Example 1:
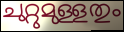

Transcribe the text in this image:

ചുറ്റുമുള്ളതും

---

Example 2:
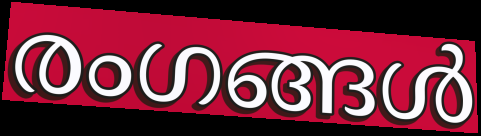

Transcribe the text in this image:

രംഗങ്ങൾ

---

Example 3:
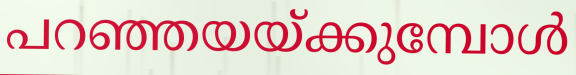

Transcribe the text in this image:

പറഞ്ഞയയ്ക്കുമ്പോൾ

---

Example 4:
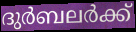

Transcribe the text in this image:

ദുർബലർക്ക്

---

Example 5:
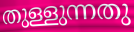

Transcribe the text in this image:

തുള്ളുന്നതു